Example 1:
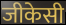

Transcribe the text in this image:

जीकेसी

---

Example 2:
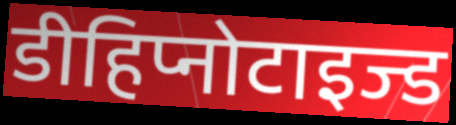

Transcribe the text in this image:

डीहिप्नोटाइज्ड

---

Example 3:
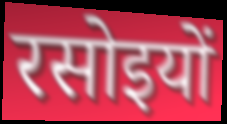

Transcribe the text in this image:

रसोइयों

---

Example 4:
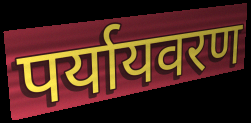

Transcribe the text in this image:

पर्यायवरण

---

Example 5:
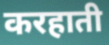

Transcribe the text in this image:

करहाती